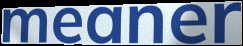
meaner